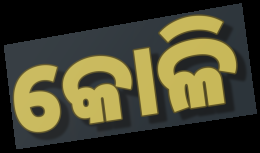
କୋଳି